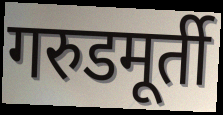
गरुडमूर्ती